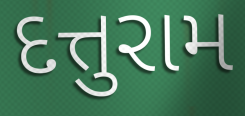
દત્તુરામ